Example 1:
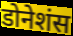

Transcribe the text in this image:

डोनेशंस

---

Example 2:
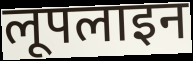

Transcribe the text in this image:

लूपलाइन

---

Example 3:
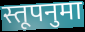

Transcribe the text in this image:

स्तूपनुमा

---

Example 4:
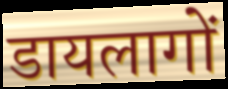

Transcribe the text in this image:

डायलागों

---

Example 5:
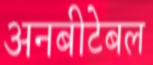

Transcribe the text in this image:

अनबीटेबल